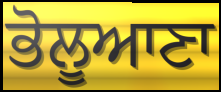
ਭੋਲੂਆਣਾ